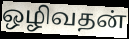
ஒழிவதன்